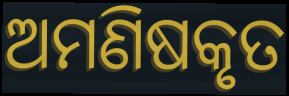
ଅମଣିଷକୃତ